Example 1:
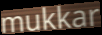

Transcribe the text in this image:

mukkar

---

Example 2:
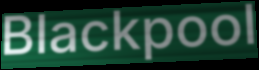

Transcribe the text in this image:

Blackpool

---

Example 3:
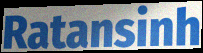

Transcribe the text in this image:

Ratansinh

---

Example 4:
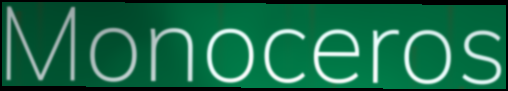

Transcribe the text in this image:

Monoceros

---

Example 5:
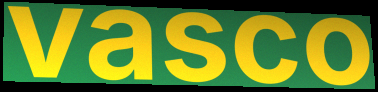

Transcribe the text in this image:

vasco